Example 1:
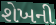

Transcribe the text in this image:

શેખની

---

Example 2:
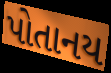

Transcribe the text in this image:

પોતાનય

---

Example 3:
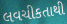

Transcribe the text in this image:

લવચીકતાથી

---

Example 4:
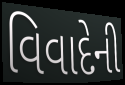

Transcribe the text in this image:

વિવાદેની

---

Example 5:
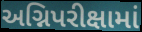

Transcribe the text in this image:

અગ્નિપરીક્ષામાં